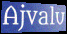
Ajvalu